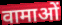
वामाओं